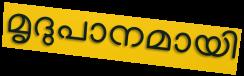
മൃദുപാനമായി